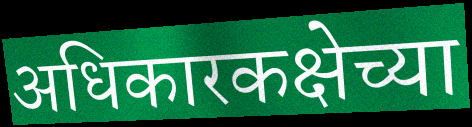
अधिकारकक्षेच्या